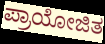
ಪ್ರಾಯೋಜಿತ